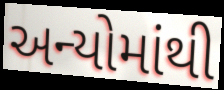
અન્યોમાંથી